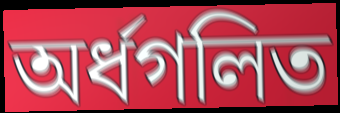
অর্ধগলিত